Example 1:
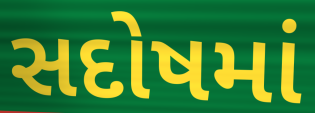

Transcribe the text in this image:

સદોષમાં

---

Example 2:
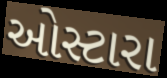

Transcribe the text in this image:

ઓસ્ટારા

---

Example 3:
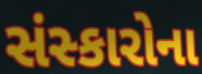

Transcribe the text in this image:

સંસ્કારોના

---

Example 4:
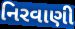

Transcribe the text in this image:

નિરવાણી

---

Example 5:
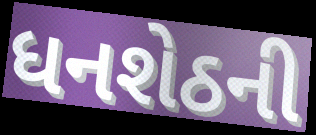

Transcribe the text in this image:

ધનશેઠની